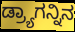
ಡ್ರ್ಯಾಗನ್ನಿನ